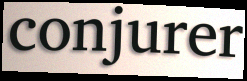
conjurer